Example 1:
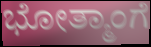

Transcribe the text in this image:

ಭೋತ್ಮಾಂಗೆ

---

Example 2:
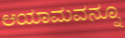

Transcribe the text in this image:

ಆಯಾಮವನ್ನೂ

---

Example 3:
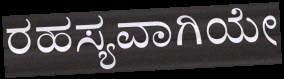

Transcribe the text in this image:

ರಹಸ್ಯವಾಗಿಯೇ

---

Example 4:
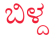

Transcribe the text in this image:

ಬಿಳ್ದ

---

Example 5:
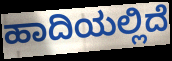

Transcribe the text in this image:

ಹಾದಿಯಲ್ಲಿದೆ